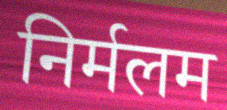
निर्मलम